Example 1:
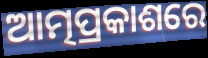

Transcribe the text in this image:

ଆତ୍ମପ୍ରକାଶରେ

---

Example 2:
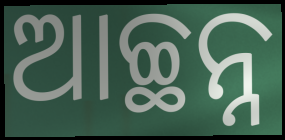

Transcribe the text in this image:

ଆଚ୍ଛନ୍ନ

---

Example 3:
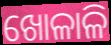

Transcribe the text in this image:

ଖୋଳାଳି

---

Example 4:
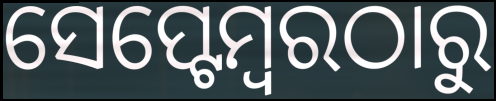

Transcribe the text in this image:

ସେପ୍ଟେମ୍ବରଠାରୁ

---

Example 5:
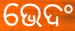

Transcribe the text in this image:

ଭେଦଂ